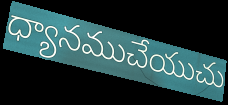
ధ్యానముచేయుచు